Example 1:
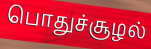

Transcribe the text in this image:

பொதுச்சூழல்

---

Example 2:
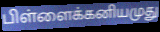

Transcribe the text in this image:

பிள்ளைக்கனியமுது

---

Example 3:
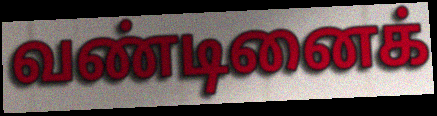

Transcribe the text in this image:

வண்டினைக்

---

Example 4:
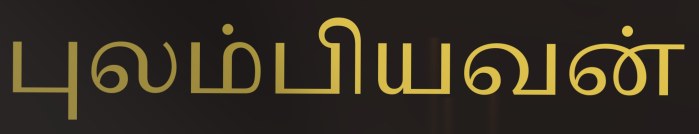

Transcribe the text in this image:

புலம்பியவன்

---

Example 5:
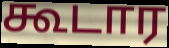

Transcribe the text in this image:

கூடார